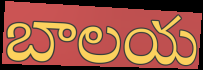
బాలయ